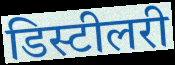
डिस्टीलरी